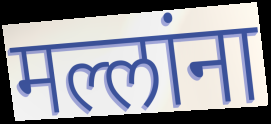
मल्लांना